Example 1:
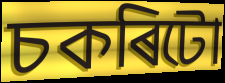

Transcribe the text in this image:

চকৰিটো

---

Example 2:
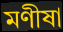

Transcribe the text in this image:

মণীষা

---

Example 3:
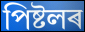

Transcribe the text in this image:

পিষ্টলৰ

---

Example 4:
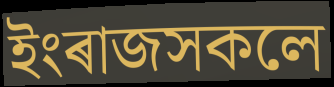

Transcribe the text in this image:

ইংৰাজসকলে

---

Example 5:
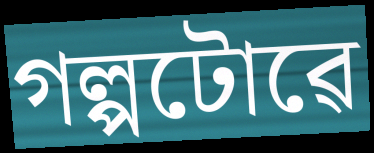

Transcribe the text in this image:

গল্পটোৱে